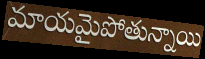
మాయమైపోతున్నాయి